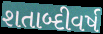
શતાબ્દીવર્ષ